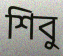
শিবু